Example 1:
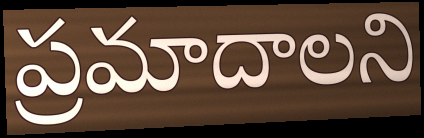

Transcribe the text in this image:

ప్రమాదాలని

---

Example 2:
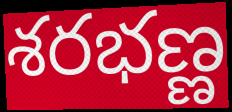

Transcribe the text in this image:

శరభణ్ణ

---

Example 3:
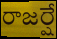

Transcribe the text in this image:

రాజర్షే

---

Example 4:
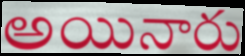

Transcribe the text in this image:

అయినారు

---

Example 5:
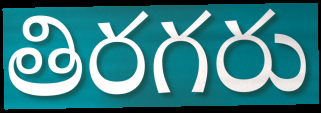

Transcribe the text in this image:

తిరగరు